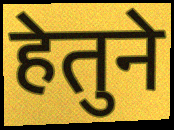
हेतुने